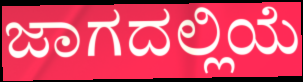
ಜಾಗದಲ್ಲಿಯೆ